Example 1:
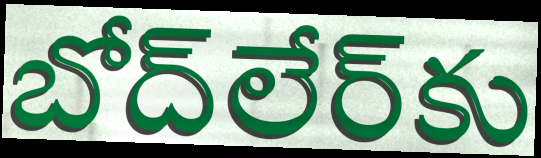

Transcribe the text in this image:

బోద్‌లేర్‌కు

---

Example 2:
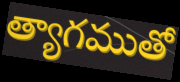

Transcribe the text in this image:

త్యాగముతో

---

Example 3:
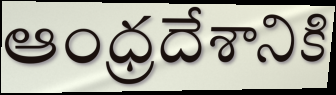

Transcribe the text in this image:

ఆంధ్రదేశానికి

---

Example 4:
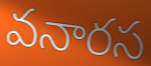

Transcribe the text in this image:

వనారస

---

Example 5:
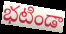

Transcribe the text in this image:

భటిండా